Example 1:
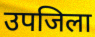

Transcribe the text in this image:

उपजिला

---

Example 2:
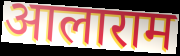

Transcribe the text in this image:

आलाराम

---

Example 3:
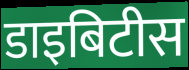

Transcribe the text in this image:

डाइबिटीस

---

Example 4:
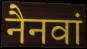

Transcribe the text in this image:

नैनवां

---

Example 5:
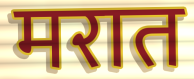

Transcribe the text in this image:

मरात